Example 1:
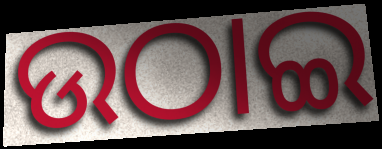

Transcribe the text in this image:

ଉଠାଇ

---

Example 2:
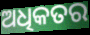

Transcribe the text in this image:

ଅଧିକତର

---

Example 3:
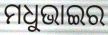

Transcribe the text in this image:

ମଧୁଭାଇର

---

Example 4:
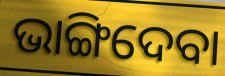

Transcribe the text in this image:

ଭାଙ୍ଗିଦେବା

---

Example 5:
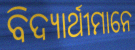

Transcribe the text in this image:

ବିଦ୍ୟାର୍ଥୀମାନେ